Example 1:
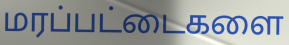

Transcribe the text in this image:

மரப்பட்டைகளை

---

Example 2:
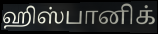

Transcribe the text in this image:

ஹிஸ்பானிக்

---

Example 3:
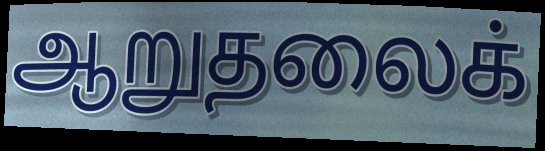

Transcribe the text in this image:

ஆறுதலைக்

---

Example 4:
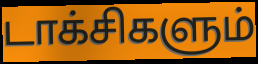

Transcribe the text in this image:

டாக்சிகளும்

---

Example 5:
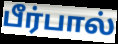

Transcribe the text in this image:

பீர்பால்